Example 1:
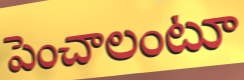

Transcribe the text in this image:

పెంచాలంటూ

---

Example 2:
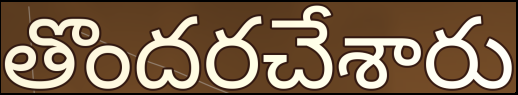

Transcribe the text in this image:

తొందరచేశారు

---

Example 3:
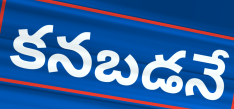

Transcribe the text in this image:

కనబడనే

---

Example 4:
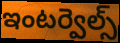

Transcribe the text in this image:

ఇంటర్వెల్స్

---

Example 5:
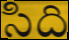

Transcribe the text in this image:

సిది